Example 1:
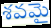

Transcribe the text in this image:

శవమై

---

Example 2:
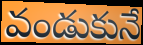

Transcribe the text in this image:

వండుకునే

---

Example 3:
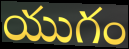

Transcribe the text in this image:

యుగం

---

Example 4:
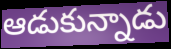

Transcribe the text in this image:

ఆడుకున్నాడు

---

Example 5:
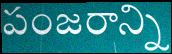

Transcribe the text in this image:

పంజరాన్ని